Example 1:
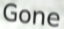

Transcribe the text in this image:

Gone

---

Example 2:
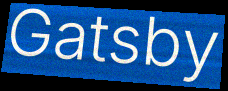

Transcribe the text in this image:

Gatsby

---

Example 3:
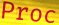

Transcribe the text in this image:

Proc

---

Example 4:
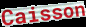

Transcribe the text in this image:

Caisson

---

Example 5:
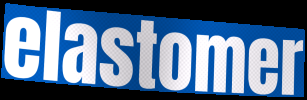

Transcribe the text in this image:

elastomer